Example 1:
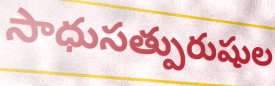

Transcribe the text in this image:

సాధుసత్పురుషుల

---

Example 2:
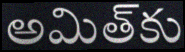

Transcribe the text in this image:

అమిత్‌కు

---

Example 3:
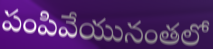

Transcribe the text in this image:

పంపివేయునంతలో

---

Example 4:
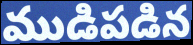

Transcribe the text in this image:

ముడిపడిన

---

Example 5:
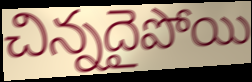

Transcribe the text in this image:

చిన్నదైపోయి